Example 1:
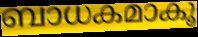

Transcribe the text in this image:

ബാധകമാകൂ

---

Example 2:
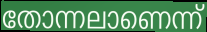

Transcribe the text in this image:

തോന്നലാണെന്ന്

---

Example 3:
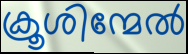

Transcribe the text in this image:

ക്രൂശിന്മേൽ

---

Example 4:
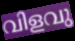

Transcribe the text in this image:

വിളവു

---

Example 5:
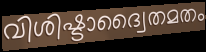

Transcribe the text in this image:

വിശിഷ്ടാദ്വൈതമതം